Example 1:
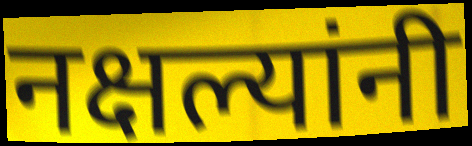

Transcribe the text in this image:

नक्षल्यांनी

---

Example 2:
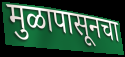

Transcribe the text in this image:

मुळापासूनचा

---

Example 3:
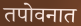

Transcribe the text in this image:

तपोवनात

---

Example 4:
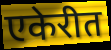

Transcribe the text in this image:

एकेरीत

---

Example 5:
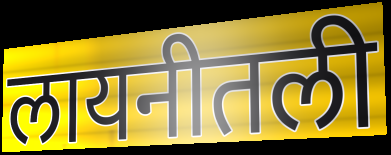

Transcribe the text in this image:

लायनीतली